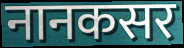
नानकसर